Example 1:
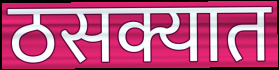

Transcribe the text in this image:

ठसक्यात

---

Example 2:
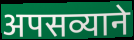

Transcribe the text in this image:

अपसव्याने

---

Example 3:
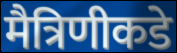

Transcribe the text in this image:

मैत्रिणीकडे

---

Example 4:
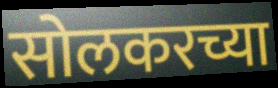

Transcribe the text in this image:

सोलकरच्या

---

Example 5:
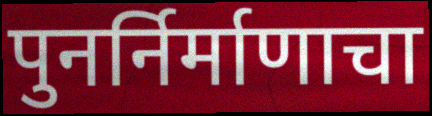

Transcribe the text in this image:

पुनर्निर्माणाचा